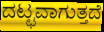
ದಟ್ಟವಾಗುತ್ತದೆ